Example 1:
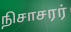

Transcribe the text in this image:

நிசாசரர்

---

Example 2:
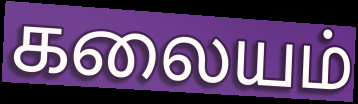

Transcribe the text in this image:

கலையம்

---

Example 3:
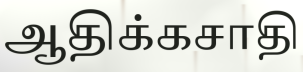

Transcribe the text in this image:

ஆதிக்கசாதி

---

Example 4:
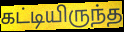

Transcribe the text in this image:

கட்டியிருந்த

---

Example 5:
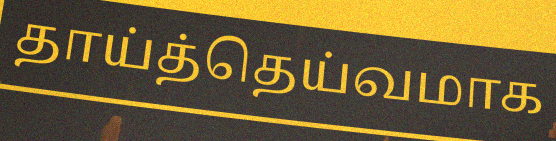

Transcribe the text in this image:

தாய்த்தெய்வமாக